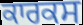
ਕਾਰਕਸ